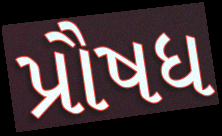
પ્રૌષધ